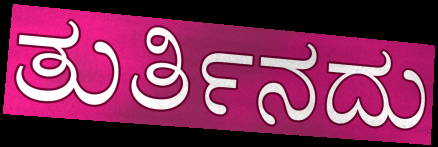
ತುರ್ತಿನದು